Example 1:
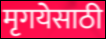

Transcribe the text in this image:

मृगयेसाठी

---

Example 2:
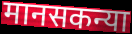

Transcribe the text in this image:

मानसकन्या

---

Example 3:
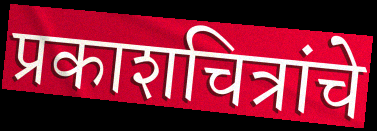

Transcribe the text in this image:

प्रकाशचित्रांचे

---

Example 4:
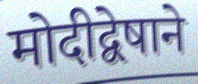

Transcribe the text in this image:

मोदीद्वेषाने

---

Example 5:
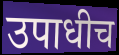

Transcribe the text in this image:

उपाधीच